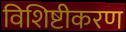
विशिष्टीकरण